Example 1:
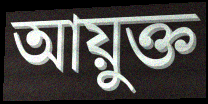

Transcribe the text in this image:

আয়ুক্ত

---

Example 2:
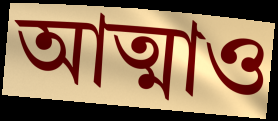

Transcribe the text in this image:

আত্মাও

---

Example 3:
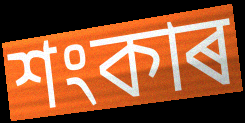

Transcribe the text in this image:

শংকাৰ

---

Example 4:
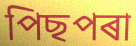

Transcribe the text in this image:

পিছপৰা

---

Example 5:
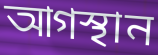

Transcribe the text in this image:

আগস্থান